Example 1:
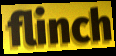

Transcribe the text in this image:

flinch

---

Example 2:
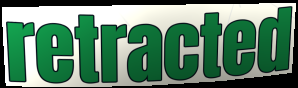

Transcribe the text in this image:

retracted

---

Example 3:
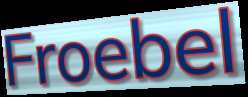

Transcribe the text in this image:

Froebel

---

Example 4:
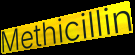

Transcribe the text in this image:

Methicillin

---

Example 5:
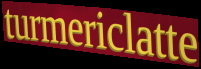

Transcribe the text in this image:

turmericlatte